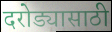
दरोड्यासाठी